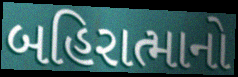
બહિરાત્માનો